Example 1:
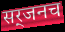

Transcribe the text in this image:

सर्जनच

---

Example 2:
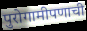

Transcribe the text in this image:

पुरोगामीपणाची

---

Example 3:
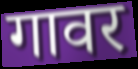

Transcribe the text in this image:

गावर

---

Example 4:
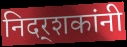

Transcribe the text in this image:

निदर्शकांनी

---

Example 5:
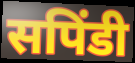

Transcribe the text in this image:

सपिंडी